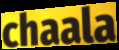
chaala